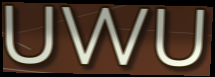
UWU